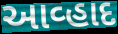
આવ્હાદ